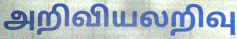
அறிவியலறிவு